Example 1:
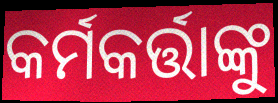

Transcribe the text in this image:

କର୍ମକର୍ତ୍ତାଙ୍କୁ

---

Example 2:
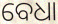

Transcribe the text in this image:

ବେଧା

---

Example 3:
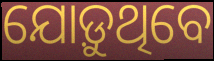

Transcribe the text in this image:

ଯୋଡ଼ୁଥିବେ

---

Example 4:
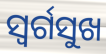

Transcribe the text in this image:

ସ୍ୱର୍ଗସୁଖ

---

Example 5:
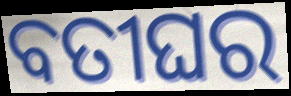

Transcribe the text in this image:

ବତୀଘର